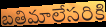
బతిమాలేసరికి